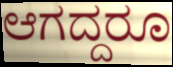
ಆಗದ್ದರೂ